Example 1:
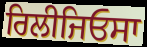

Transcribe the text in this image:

ਰਿਲੀਜਿਓਸਾ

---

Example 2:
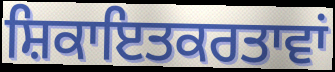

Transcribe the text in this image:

ਸ਼ਿਕਾਇਤਕਰਤਾਵਾਂ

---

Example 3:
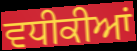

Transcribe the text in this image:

ਵਧੀਕੀਆਂ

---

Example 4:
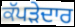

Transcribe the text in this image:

ਕੱਪੜੇਦਾਰ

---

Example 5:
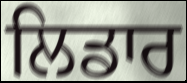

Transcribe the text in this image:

ਲਿਡਾਰ